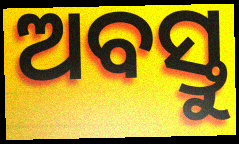
ଅବସ୍ତୁ